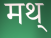
मथ्